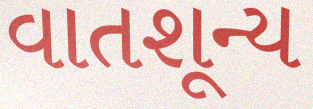
વાતશૂન્ય